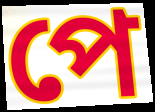
পে